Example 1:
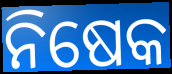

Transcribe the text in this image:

ନିଷେକ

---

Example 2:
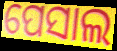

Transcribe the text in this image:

ପେସାଲ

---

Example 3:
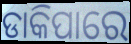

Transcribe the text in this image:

ଡାକିପାରେ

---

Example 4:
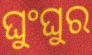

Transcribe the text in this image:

ଘୁଂଘୁର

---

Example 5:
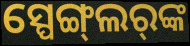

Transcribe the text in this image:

ସ୍ପେଙ୍ଗ୍‌ଲର୍‌ଙ୍କ